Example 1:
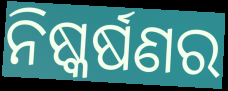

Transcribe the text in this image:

ନିଷ୍କର୍ଷଣର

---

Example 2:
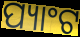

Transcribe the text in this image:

ପ୍ୟାଂଟ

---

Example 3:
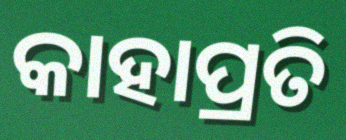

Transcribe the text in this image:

କାହାପ୍ରତି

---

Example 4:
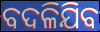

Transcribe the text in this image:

ବଦଳିଯିବ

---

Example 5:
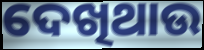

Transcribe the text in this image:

ଦେଖିଥାଉ